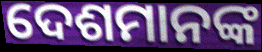
ଦେଶମାନଙ୍କ